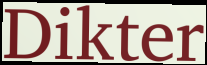
Dikter